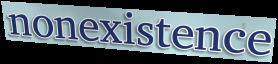
nonexistence